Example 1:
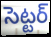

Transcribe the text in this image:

సెట్టర్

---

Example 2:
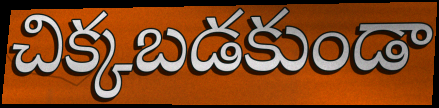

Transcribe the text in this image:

చిక్కబడకుండా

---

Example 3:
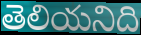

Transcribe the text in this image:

తెలియనిది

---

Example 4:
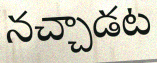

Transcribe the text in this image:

నచ్చాడట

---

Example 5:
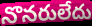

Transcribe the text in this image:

నొనరులేదు